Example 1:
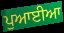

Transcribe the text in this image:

ਪੁਆਈਆ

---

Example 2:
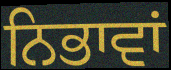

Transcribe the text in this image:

ਨਿਭਾਵਾਂ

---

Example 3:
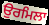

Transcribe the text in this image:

ਉਰਮਿਲਾ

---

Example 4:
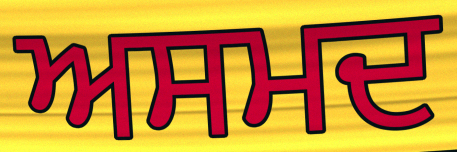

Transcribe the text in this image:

ਅਸਮਦ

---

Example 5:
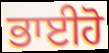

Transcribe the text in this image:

ਭਾਈਹੋ